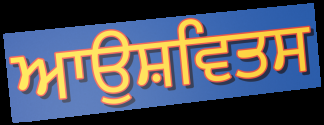
ਆਉਸ਼ਵਿਤਸ